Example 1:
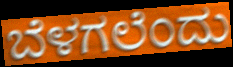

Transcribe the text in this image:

ಬೆಳಗಲೆಂದು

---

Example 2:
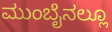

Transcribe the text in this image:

ಮುಂಬೈನಲ್ಲೂ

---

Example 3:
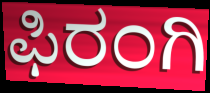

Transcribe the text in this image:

ಫಿರಂಗಿ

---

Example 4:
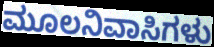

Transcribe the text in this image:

ಮೂಲನಿವಾಸಿಗಳು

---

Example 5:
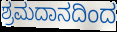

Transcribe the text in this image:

ಶ್ರಮದಾನದಿಂದ